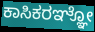
ಕಾಸಿಕರಞ್ಞೋ